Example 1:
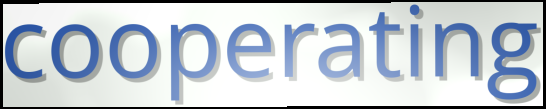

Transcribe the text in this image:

cooperating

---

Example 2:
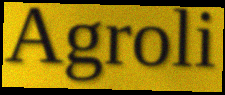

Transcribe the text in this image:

Agroli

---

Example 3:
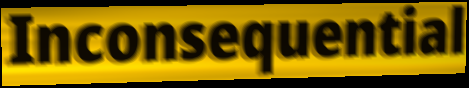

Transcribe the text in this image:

Inconsequential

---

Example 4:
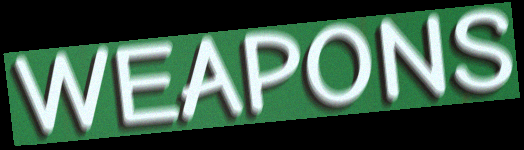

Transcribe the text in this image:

WEAPONS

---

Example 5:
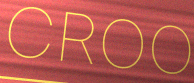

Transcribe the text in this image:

CROO